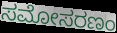
ಸಮೋಸರಣಂ